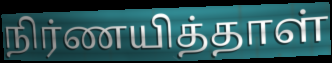
நிர்ணயித்தாள்